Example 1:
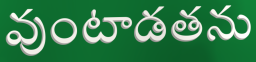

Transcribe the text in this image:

వుంటాడతను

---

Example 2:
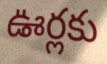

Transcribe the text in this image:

ఊర్లకు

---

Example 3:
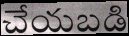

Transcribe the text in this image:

చేయబడి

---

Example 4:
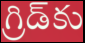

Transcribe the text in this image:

గ్రిడ్‌కు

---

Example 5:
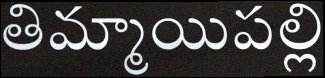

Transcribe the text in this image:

తిమ్మాయిపల్లి